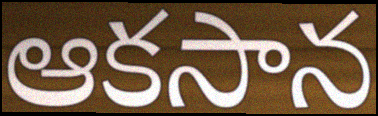
ఆకసాన